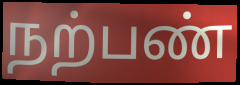
நற்பண்